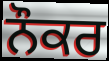
ਨੌਕਰ